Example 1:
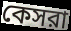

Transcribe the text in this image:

কেসরা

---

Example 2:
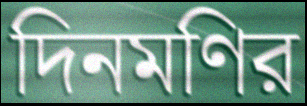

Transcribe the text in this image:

দিনমণির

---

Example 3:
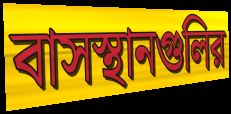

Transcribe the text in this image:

বাসস্থানগুলির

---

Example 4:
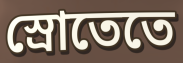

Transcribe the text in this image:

স্রোতেতে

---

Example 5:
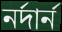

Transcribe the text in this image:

নর্দার্ন